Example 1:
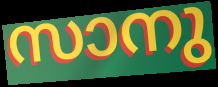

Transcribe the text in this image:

സാനു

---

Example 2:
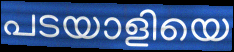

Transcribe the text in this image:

പടയാളിയെ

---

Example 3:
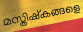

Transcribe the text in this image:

മസ്തിഷ്കങ്ങളെ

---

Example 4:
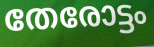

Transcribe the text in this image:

തേരോട്ടം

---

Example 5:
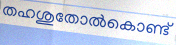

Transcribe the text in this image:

തഹശുതോൽകൊണ്ട്